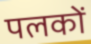
पलकों